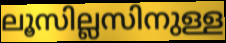
ലൂസില്ലസിനുള്ള